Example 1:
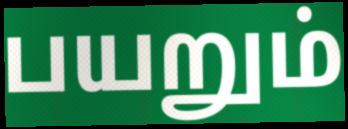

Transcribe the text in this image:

பயறும்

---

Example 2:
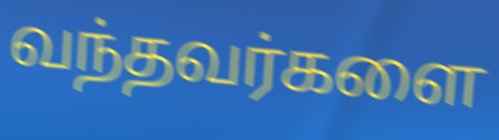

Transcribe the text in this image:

வந்தவர்களை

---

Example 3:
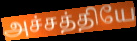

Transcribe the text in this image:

அச்சத்தியே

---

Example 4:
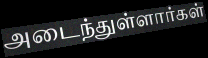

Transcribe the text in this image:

அடைந்துள்ளார்கள்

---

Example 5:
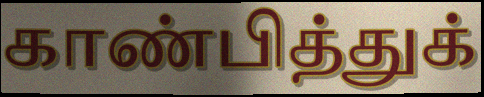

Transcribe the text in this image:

காண்பித்துக்